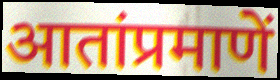
आतांप्रमाणें